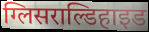
ग्लिसराल्डिहाइड